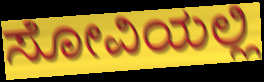
ಸೋವಿಯಲ್ಲಿ